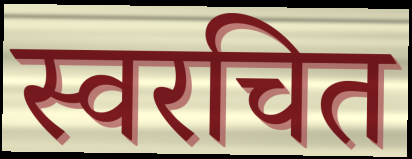
स्वरचित